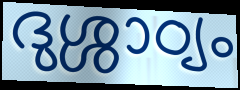
ദുശ്ശാഠ്യം